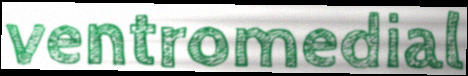
ventromedial